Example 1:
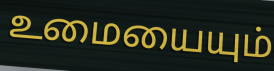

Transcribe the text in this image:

உமையையும்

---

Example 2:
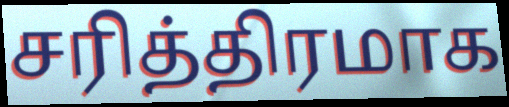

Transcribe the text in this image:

சரித்திரமாக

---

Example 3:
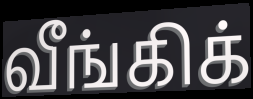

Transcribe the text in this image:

வீங்கிக்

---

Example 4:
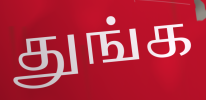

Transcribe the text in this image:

துங்க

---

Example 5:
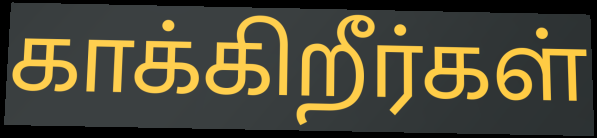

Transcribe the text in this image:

காக்கிறீர்கள்